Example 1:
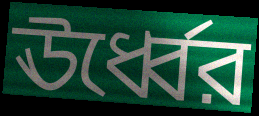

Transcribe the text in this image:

ঊর্ধ্বের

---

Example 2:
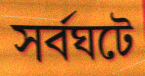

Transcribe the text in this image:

সর্বঘটে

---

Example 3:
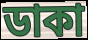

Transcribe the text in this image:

ডাকা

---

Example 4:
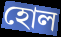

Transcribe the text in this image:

হোল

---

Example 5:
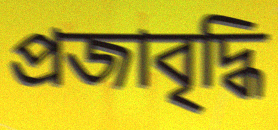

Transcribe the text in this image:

প্রজাবৃদ্ধি